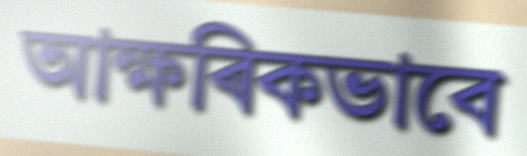
আক্ষৰিকভাবে